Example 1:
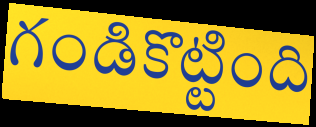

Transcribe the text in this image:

గండికొట్టింది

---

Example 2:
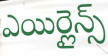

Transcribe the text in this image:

ఎయిర్లైన్స్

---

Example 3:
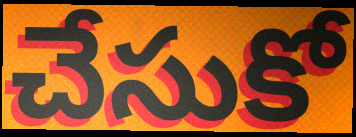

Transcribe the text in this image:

చేసుకో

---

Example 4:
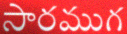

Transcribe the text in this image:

సారముగ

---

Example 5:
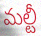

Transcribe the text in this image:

మల్టీ